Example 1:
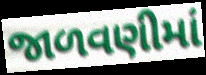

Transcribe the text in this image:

જાળવણીમાં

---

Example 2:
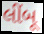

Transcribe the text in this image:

લીંબૂ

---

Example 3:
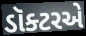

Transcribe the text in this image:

ડૉક્ટરએ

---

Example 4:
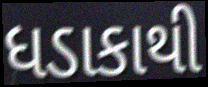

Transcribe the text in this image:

ધડાકાથી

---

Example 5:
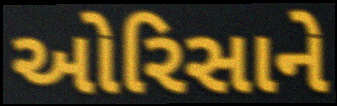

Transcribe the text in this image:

ઓરિસાને